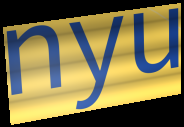
nyu